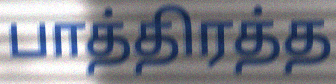
பாத்திரத்த